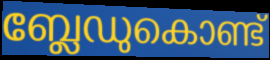
ബ്ലേഡുകൊണ്ട്